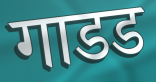
गाडड